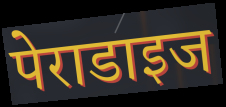
पेराडाइज